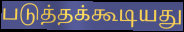
படுத்தக்கூடியது